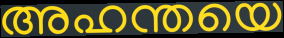
അഹന്തയെ